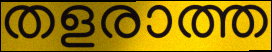
തളരാത്ത